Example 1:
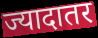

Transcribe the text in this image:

ज्यादातर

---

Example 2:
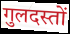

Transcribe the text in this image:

गुलदस्तों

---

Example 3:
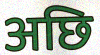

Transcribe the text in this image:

अछि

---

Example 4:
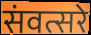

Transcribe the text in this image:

संवत्सरे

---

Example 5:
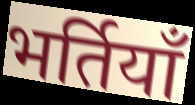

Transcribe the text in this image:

भर्तियाँ